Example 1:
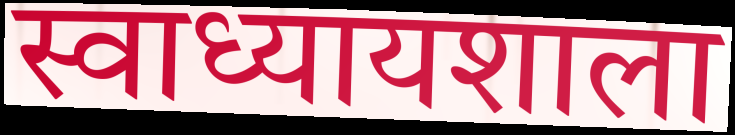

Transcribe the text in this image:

स्वाध्यायशाला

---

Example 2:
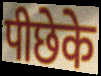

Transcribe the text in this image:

पीछेके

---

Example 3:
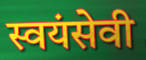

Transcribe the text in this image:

स्वयंसेवी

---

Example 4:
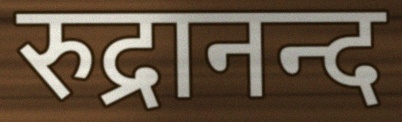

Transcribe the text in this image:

रुद्रानन्द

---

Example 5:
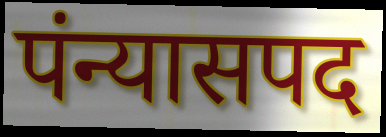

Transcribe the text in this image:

पंन्यासपद